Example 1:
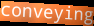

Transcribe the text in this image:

conveying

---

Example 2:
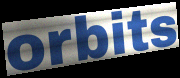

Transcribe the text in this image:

orbits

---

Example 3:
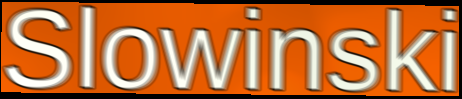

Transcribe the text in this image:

Slowinski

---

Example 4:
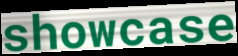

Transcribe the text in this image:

showcase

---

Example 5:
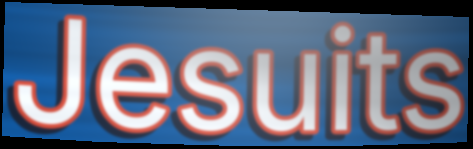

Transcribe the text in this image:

Jesuits